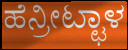
ಹೆನ್ರೀಟ್ಟಾಳ